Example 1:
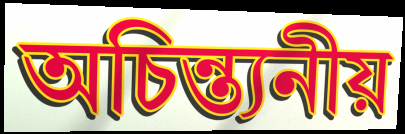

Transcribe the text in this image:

অচিন্ত্যনীয়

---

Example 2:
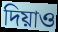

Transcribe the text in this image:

দিয়াও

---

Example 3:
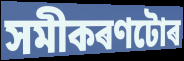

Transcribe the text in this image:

সমীকৰণটোৰ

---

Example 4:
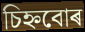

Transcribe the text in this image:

চিহ্নবোৰ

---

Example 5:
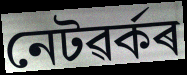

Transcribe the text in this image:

নেটৱৰ্কৰ